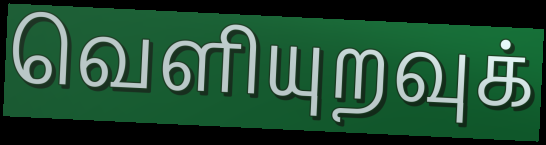
வெளியுறவுக்